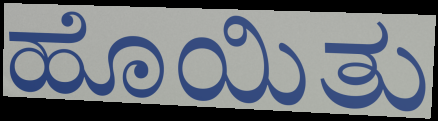
ಹೊಯಿತು